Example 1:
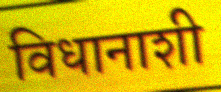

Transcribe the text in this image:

विधानाशी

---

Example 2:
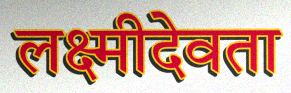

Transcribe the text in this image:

लक्ष्मीदेवता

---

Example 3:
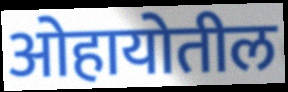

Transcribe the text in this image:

ओहायोतील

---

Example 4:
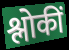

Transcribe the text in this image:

श्लोकीं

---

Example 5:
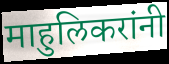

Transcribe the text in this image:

माहुलिकरांनी